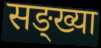
सङ्ख्या